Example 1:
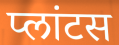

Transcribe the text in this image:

प्लांटस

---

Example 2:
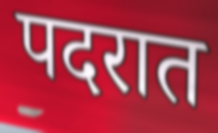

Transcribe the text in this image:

पदरात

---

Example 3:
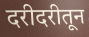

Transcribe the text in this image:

दरीदरीतून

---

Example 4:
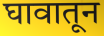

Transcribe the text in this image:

घावातून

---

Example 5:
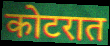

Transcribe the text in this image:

कोटरात